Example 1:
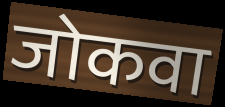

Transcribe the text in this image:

जोकवा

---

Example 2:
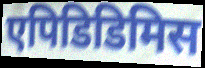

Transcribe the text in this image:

एपिडिडिमिस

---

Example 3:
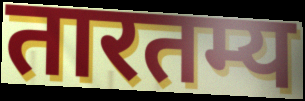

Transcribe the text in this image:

तारतम्य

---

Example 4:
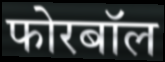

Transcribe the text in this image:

फोरबॉल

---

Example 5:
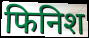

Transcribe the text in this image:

फिनिश